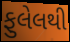
ફુલેલથી